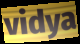
vidya